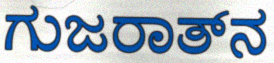
ಗುಜರಾತ್‌ನ